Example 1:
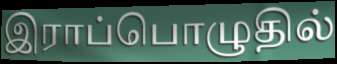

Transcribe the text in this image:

இராப்பொழுதில்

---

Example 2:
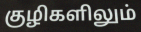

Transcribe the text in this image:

குழிகளிலும்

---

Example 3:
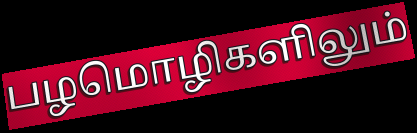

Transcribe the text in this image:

பழமொழிகளிலும்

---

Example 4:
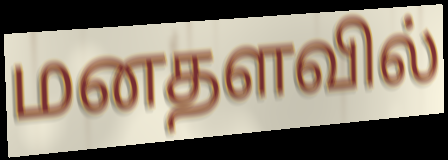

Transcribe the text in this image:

மனதளவில்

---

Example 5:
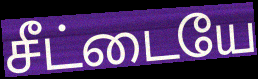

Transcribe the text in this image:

சீட்டையே